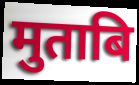
मुताबि